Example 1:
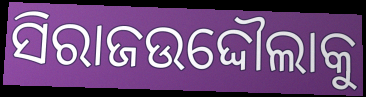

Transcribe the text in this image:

ସିରାଜଉଦ୍ଦୌଲାକୁ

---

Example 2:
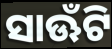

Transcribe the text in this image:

ସାଊଁଟି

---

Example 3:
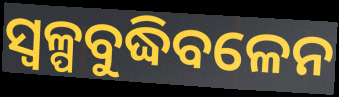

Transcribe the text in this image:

ସ୍ଵଳ୍ପବୁଦ୍ଧିବଳେନ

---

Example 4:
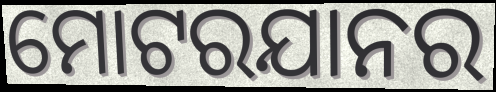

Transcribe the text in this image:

ମୋଟରଯାନର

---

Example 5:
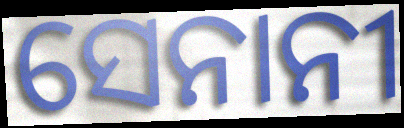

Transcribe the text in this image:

ସେନାନୀ